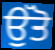
ਉੱਤੋ